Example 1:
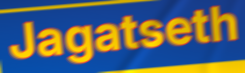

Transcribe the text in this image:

Jagatseth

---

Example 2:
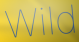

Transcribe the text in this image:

Wild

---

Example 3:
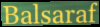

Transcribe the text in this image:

Balsaraf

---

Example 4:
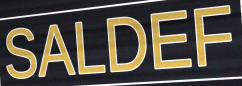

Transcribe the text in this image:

SALDEF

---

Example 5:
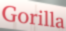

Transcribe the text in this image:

Gorilla